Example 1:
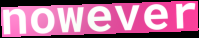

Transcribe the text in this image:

nowever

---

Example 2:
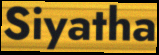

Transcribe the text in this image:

Siyatha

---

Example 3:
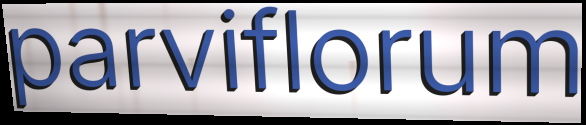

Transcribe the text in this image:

parviflorum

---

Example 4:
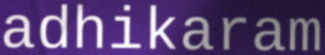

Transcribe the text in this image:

adhikaram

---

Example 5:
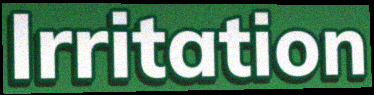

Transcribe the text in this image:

Irritation